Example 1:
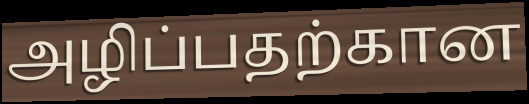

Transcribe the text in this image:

அழிப்பதற்கான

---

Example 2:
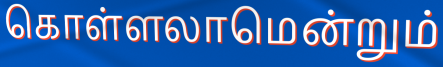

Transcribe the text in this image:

கொள்ளலாமென்றும்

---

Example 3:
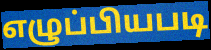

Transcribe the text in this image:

எழுப்பியபடி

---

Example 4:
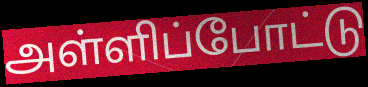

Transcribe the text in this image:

அள்ளிப்போட்டு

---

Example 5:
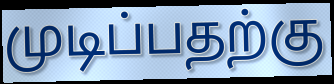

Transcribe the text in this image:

முடிப்பதற்கு